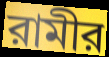
রামীর